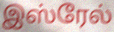
இஸ்ரேல்